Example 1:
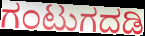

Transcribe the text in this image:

ಗಂಟುಗದಡಿ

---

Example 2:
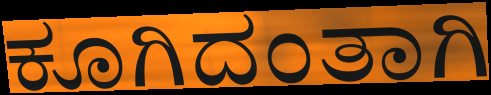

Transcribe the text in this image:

ಕೂಗಿದಂತಾಗಿ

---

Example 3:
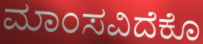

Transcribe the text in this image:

ಮಾಂಸವಿದೆಕೊ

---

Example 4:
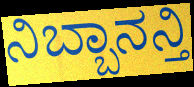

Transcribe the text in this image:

ನಿಬ್ಬಾನನ್ತಿ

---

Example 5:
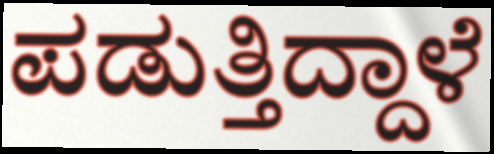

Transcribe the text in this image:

ಪಡುತ್ತಿದ್ದಾಳೆ